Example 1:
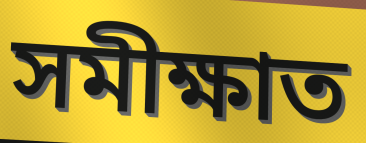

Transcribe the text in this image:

সমীক্ষাত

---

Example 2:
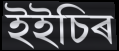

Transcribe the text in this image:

ইইচিৰ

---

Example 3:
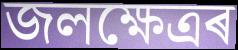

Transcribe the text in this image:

জলক্ষেত্ৰৰ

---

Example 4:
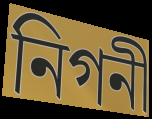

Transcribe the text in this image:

নিগনী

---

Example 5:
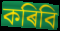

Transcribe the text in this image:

কৰিবি